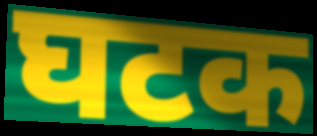
घटक